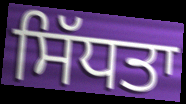
ਸਿੱਧਤਾ